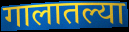
गालातल्या